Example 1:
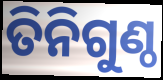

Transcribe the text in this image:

ତିନିଗୁଣ୍ଠ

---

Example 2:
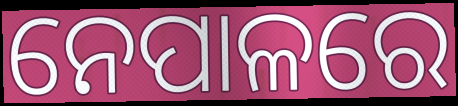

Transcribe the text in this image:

ନେପାଳରେ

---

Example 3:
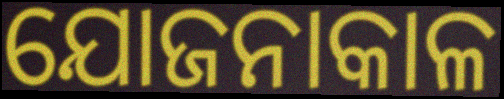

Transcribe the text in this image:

ଯୋଜନାକାଳ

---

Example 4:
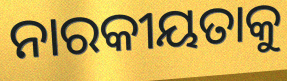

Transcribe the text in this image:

ନାରକୀୟତାକୁ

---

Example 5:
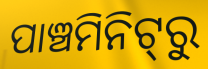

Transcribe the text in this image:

ପାଞ୍ଚମିନିଟ୍‌ରୁ